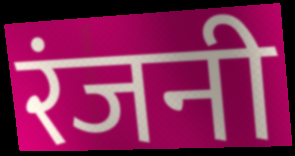
रंजनी